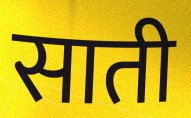
साती